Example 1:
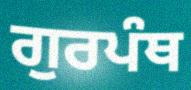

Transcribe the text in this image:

ਗੁਰਪੰਥ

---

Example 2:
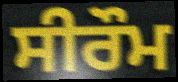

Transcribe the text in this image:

ਸੀਰੌਮ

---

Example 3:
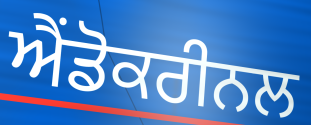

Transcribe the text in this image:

ਐਂਡੋਕਰੀਨਲ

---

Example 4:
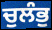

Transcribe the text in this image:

ਚੁਲੰਭੁ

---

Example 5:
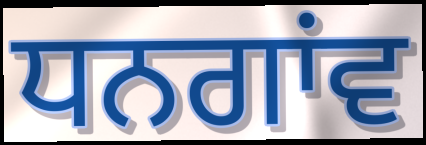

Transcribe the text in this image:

ਧਨਗਾਂਵ